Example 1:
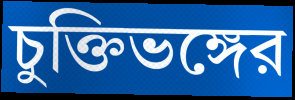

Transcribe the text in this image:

চুক্তিভঙ্গের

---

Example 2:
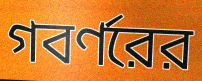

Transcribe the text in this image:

গবর্ণরের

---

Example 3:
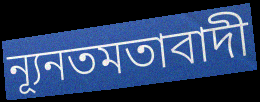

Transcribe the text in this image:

ন্যূনতমতাবাদী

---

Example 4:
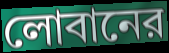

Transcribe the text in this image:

লোবানের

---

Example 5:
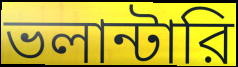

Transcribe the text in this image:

ভলান্টারি